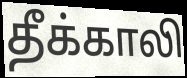
தீக்காலி